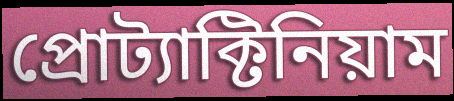
প্রোট্যাক্টিনিয়াম